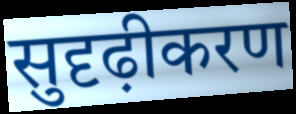
सुदृढ़ीकरण